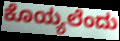
ಕೊಯ್ಯಲೆಂದು